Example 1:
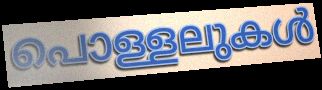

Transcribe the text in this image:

പൊള്ളലുകൾ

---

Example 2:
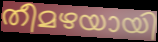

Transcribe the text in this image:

തീമഴയായി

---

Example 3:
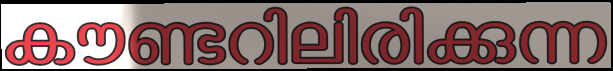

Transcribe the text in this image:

കൗണ്ടറിലിരിക്കുന്ന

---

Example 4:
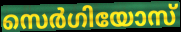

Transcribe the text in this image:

സെർഗിയോസ്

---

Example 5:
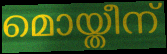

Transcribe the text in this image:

മൊയ്തീന്